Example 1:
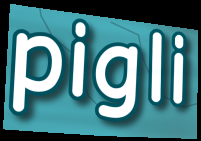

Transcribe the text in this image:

pigli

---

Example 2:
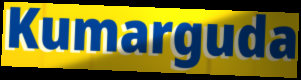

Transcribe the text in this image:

Kumarguda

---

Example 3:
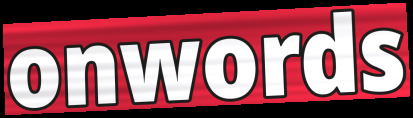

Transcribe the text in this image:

onwords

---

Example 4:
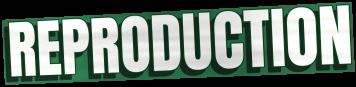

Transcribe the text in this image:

REPRODUCTION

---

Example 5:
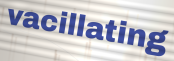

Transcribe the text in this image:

vacillating